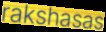
rakshasas